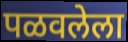
पळवलेला